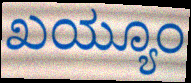
ಖಯ್ಯೂಂ